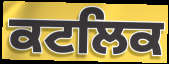
ਕਟਲਿਕ